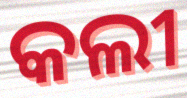
କଲୀ